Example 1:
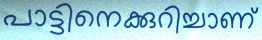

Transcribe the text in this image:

പാട്ടിനെക്കുറിച്ചാണ്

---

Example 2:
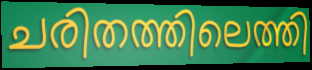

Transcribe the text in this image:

ചരിതത്തിലെത്തി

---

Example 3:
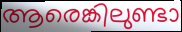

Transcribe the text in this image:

ആരെങ്കിലുണ്ടാ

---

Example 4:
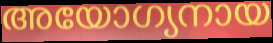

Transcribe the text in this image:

അയോഗ്യനായ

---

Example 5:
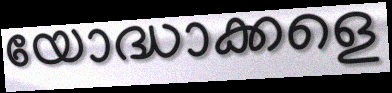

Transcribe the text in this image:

യോദ്ധാക്കളെ